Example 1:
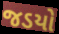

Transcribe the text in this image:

જડયો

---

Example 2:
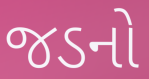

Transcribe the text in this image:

જડનો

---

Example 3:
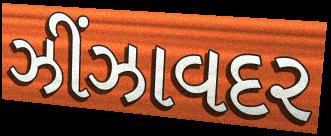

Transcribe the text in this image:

ઝીંઝાવદર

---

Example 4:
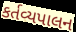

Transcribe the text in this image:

કર્તવ્યપાલન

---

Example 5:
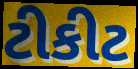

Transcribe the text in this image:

ટીકીટ